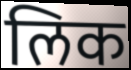
लिक